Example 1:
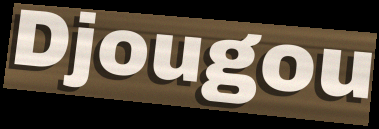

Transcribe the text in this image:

Djougou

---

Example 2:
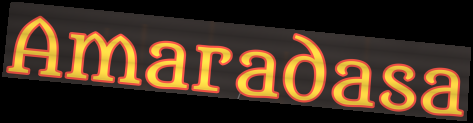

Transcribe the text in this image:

Amaradasa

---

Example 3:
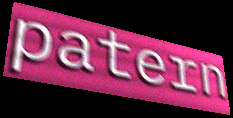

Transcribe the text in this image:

patern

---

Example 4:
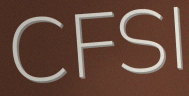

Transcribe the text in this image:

CFSI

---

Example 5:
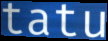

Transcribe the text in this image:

tatu